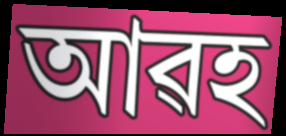
আৱহ